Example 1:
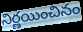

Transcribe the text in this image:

నిర్ణయించినం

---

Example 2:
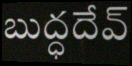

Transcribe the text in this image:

బుద్ధదేవ్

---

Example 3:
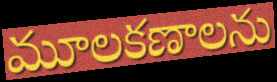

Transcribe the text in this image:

మూలకణాలను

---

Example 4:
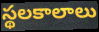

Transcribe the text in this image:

స్థలకాలాలు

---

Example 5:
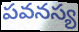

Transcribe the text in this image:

పవనస్య